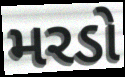
મરડો